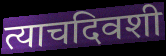
त्याचदिवशी